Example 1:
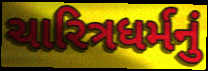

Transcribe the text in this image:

ચારિત્રધર્મનું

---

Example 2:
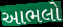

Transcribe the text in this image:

આભલો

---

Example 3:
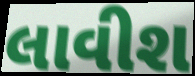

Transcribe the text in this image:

લાવીશ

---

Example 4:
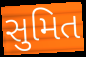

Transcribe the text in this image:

સુમિત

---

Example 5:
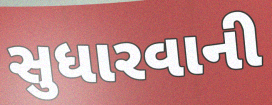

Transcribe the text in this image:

સુધારવાની